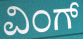
ವಿಂಗ್